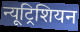
न्यूट्रिशियन